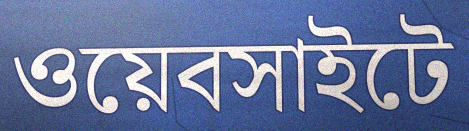
ওয়েবসাইটে